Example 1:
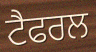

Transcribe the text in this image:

ਟੈਫਰਲ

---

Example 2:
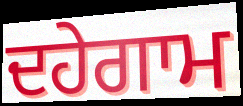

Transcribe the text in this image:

ਦਹੇਗਾਮ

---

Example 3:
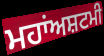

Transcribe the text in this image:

ਮਹਾਂਅਸ਼ਟਮੀ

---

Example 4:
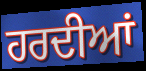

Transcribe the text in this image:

ਹਰਦੀਆਂ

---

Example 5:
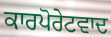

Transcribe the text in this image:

ਕਾਰਪੋਰੇਟਵਾਦ